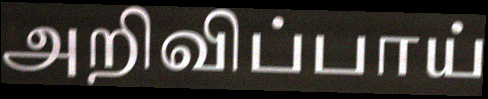
அறிவிப்பாய்